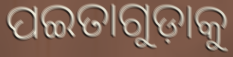
ପଇତାଗୁଡ଼ାକୁ